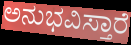
ಅನುಭವಿಸ್ತಾರೆ